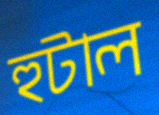
হুটাল